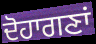
ਦੋਹਾਗਣਾਂ